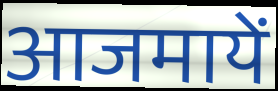
आजमायें